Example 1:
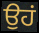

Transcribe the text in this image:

ਉਹਂ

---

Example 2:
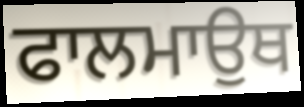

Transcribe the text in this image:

ਫਾਲਮਾਉਥ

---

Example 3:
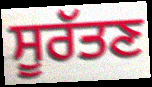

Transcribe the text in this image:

ਸੂਰੱਤਣ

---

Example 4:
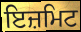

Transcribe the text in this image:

ਇਜ਼ਮਿਟ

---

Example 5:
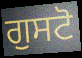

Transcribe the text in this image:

ਗੁਸਟੋ